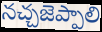
నచ్చజెప్పాలి